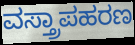
ವಸ್ತ್ರಾಪಹರಣ